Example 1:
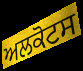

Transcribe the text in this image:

ਅਲਕੋਟਸ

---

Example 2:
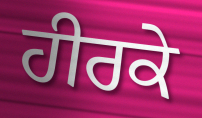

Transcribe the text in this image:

ਹੀਰਕੇ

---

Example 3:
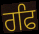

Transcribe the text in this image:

ਰਫਿ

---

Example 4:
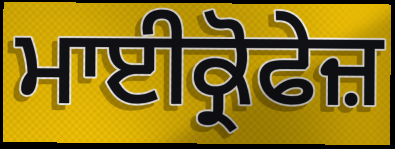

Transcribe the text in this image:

ਮਾਈਕ੍ਰੋਫੇਜ਼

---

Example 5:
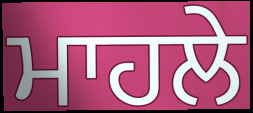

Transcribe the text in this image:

ਮਾਹਲੇ